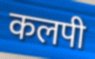
कलपी